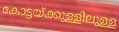
കോട്ടയ്ക്കുള്ളിലുള്ള